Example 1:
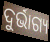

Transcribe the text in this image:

ଦୁର୍ଭାଗ୍ୟ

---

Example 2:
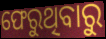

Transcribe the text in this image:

ଫେରୁଥିବାରୁ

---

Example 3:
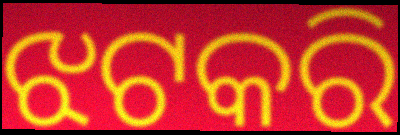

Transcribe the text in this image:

ଝଟକରି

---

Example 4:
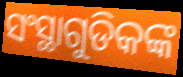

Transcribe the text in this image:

ସଂସ୍ଥାଗୁଡିକଙ୍କ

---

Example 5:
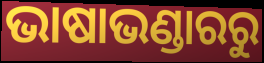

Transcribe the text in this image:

ଭାଷାଭଣ୍ଡାରରୁ